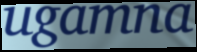
ugamna